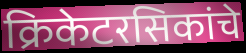
क्रिकेटरसिकांचे